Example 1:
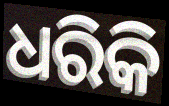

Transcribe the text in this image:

ଧରିକି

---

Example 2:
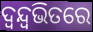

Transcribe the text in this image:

ଦ୍ୱନ୍ଦ୍ୱଭିତରେ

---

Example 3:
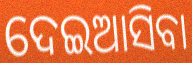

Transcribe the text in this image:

ଦେଇଆସିବା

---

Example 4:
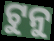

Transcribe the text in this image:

ଟୁନୁ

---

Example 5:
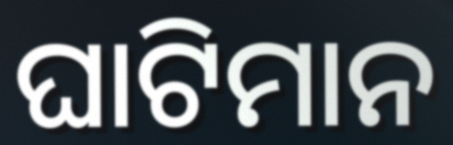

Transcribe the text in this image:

ଘାଟିମାନ